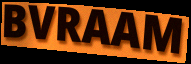
BVRAAM